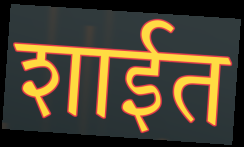
शाईत